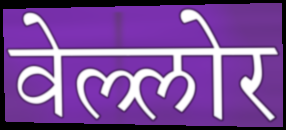
वेल्लोर